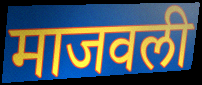
माजवली